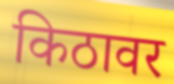
किठावर